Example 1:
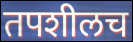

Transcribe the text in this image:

तपशीलच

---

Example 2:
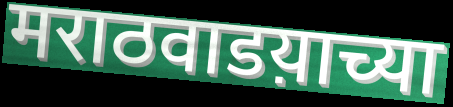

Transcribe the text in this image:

मराठवाडय़ाच्या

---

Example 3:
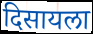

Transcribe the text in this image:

दिसायला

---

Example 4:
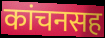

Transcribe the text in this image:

कांचनसह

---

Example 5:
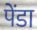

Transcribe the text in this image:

पेंडा